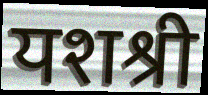
यशश्री